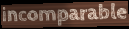
incomparable